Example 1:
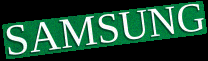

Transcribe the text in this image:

SAMSUNG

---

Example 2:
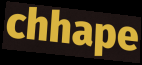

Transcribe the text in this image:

chhape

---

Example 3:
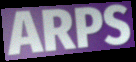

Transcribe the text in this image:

ARPS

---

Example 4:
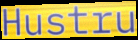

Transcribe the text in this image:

Hustru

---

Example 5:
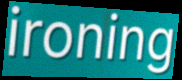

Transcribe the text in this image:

ironing